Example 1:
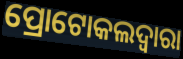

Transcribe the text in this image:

ପ୍ରୋଟୋକଲଦ୍ୱାରା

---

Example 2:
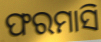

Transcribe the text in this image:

ଫରମାସି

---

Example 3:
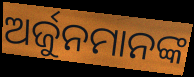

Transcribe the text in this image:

ଅର୍ଜୁନମାନଙ୍କ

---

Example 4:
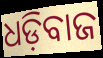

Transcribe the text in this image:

ଧଡ଼ିବାଜ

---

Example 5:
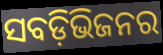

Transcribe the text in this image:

ସବଡ଼ିଭିଜନର